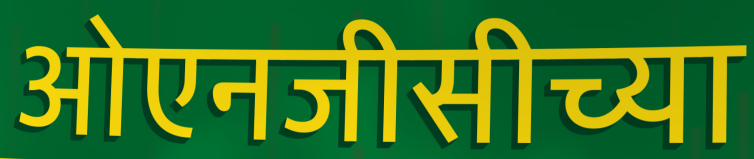
ओएनजीसीच्या